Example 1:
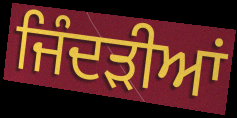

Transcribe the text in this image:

ਜਿੰਦੜੀਆਂ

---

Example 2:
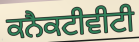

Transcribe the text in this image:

ਕਨੈਕਟੀਵੀਟੀ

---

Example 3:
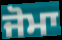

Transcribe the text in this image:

ਜੋਮਾ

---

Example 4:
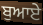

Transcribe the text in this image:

ਬੁਆਏ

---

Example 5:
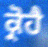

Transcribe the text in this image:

ਕ੍ਰੋਹੈ